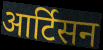
आर्टिसन